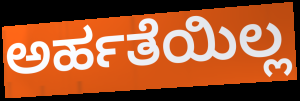
ಅರ್ಹತೆಯಿಲ್ಲ